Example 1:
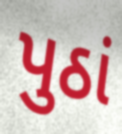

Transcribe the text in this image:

પુઠાં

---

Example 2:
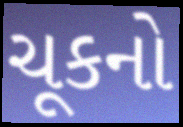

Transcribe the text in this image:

ચૂકનો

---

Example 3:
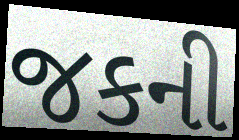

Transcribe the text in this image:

જકની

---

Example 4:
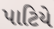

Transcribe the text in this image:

પાટિયે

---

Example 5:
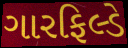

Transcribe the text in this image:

ગારફિલ્ડે